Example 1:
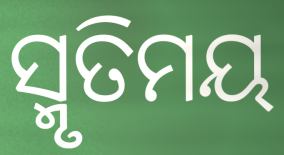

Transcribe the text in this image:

ସ୍ମୃତିମୟ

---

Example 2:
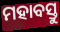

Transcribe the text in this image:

ମହାବସ୍ତୁ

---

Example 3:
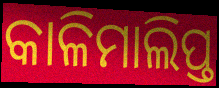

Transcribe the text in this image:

କାଳିମାଲିପ୍ତ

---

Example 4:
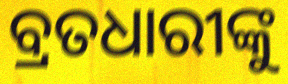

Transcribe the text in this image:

ବ୍ରତଧାରୀଙ୍କୁ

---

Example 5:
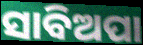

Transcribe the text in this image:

ସାବିଅପା